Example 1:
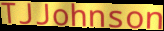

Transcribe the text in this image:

TJJohnson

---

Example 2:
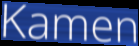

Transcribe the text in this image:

Kamen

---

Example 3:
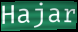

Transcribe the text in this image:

Hajar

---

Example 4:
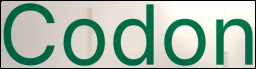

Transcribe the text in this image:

Codon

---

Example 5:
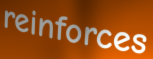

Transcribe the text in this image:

reinforces